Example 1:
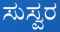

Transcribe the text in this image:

ಸುಸ್ವರ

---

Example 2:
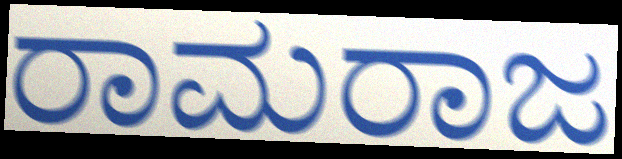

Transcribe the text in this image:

ರಾಮರಾಜ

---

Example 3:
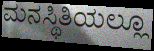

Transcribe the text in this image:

ಮನಸ್ಥಿತಿಯಲ್ಲೂ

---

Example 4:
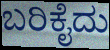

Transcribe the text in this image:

ಬರಿಕೈದು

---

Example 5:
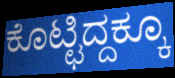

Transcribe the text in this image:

ಕೊಟ್ಟಿದ್ದಕ್ಕೂ